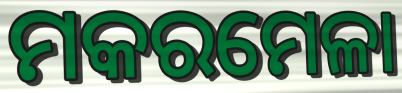
ମକରମେଳା